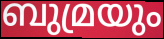
ബുമ്രയും